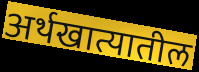
अर्थखात्यातील